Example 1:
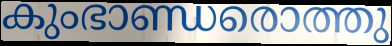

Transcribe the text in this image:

കുംഭാണ്ഡരൊത്തു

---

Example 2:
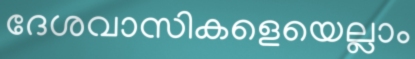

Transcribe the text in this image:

ദേശവാസികളെയെല്ലാം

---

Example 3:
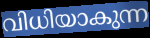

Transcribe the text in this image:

വിധിയാകുന്ന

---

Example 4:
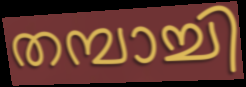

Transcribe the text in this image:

തമ്പാച്ചി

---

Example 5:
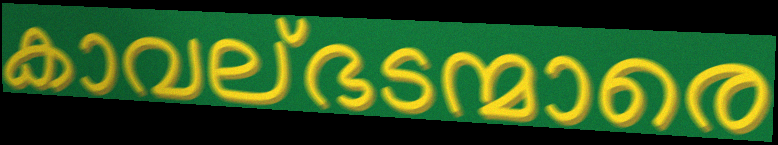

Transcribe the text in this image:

കാവല്ഭടന്മാരെ